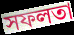
সফলতা